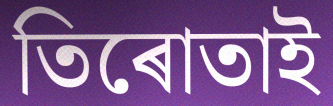
তিৰোতাই